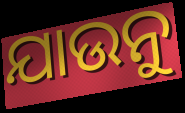
ଯାଉନୁ